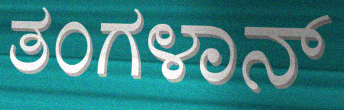
ತಂಗಳಾನ್